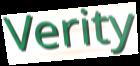
Verity